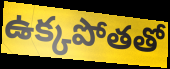
ఉక్కపోతతో